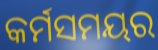
କର୍ମସମୟର